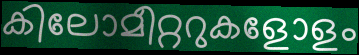
കിലോമീറ്ററുകളോളം